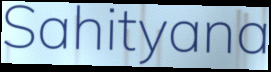
Sahityana